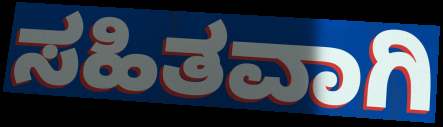
ಸಹಿತವಾಗಿ